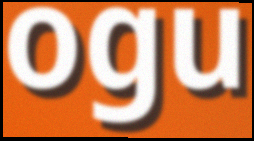
ogu